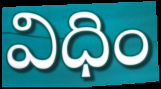
విధిం